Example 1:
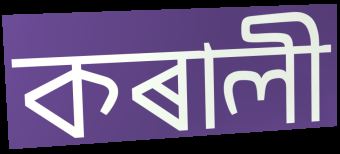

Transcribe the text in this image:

কৰালী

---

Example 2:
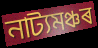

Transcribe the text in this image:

নাট্যমঞ্চৰ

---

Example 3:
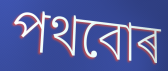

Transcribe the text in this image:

পথবোৰ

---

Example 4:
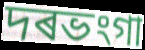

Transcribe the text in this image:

দৰভংগা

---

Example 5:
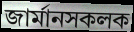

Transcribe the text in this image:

জাৰ্মানসকলক